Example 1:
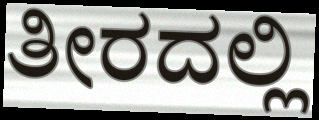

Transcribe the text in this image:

ತೀರದಲ್ಲಿ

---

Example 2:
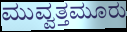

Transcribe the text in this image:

ಮುವ್ವತ್ತಮೂರು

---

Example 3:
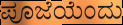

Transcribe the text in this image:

ಪೂಜೆಯೆಂದು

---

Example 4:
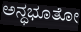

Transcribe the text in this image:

ಅನ್ಧಭೂತೋ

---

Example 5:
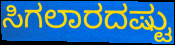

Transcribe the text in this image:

ಸಿಗಲಾರದಷ್ಟು